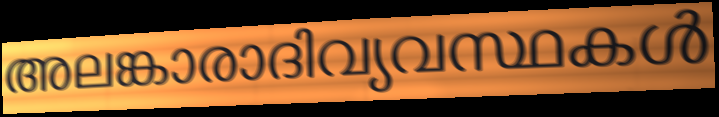
അലങ്കാരാദിവ്യവസ്ഥകൾ